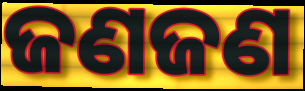
ଜଣଜଣ